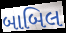
બાબિલ